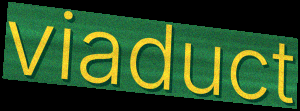
viaduct